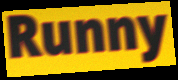
Runny